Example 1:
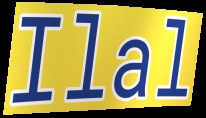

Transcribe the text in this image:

Ilal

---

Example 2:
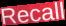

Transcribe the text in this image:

Recall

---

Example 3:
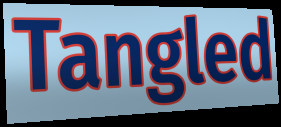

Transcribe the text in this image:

Tangled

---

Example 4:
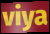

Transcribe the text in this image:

viya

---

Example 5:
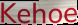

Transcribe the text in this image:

Kehoe